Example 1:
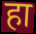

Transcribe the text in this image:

हा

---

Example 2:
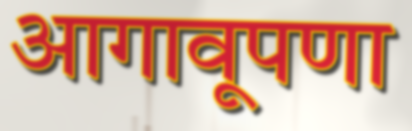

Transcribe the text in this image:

आगावूपणा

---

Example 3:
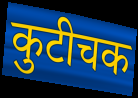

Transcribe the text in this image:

कुटीचक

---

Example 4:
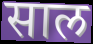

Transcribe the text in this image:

साल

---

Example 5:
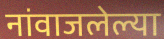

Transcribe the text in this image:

नांवाजलेल्या